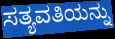
ಸತ್ಯವತಿಯನ್ನು